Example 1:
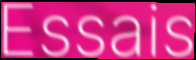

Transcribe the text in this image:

Essais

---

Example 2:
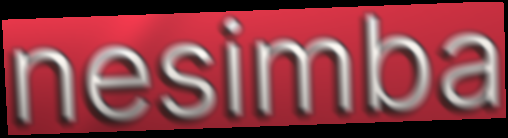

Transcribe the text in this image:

nesimba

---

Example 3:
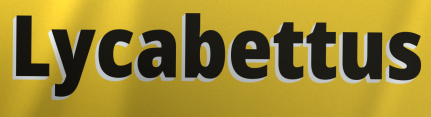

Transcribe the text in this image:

Lycabettus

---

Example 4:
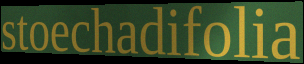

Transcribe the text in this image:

stoechadifolia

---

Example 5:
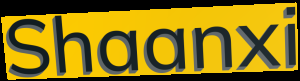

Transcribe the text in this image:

Shaanxi